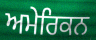
ਅਮੇਰਿਕਨ